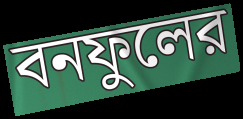
বনফুলের